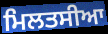
ਮਿਲਤਸੀਆ